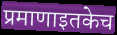
प्रमाणाइतकेच